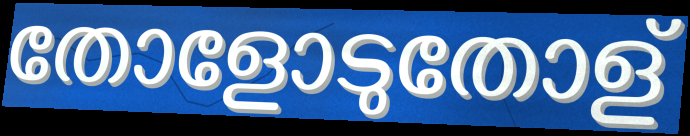
തോളോടുതോള്